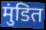
मुंडित